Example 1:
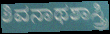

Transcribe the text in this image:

ಶಿವನಾಥಶಾಸ್ತ್ರಿ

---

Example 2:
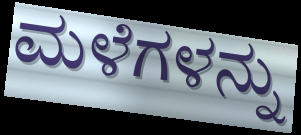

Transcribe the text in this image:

ಮಳೆಗಳನ್ನು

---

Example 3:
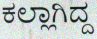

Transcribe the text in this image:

ಕಲ್ಲಾಗಿದ್ದ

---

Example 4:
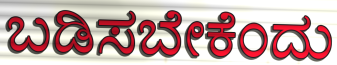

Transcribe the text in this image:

ಬಡಿಸಬೇಕೆಂದು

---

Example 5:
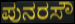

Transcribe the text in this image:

ಪುನರಸೌ